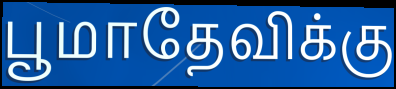
பூமாதேவிக்கு